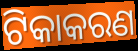
ଟିକାକରଣ